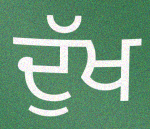
ਦੁੱਖ